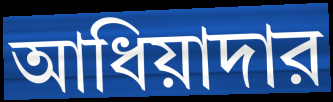
আধিয়াদার